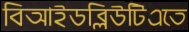
বিআইডব্লিউটিএতে